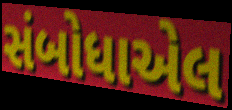
સંબોધાએલ